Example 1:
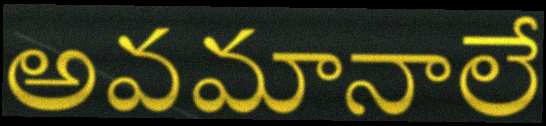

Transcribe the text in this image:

అవమానాలే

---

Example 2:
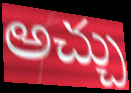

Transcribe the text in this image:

అచ్చు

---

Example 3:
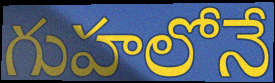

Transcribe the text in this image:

గుహలోనే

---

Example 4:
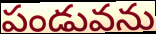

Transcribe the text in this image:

పండువను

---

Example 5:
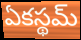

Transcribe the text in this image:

ఏకస్థమ్